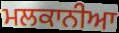
ਮਲਕਾਨੀਆ